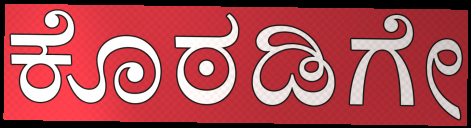
ಕೊಠಡಿಗೇ